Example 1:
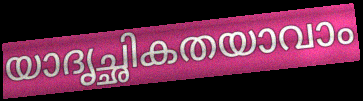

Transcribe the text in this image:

യാദൃച്ഛികതയാവാം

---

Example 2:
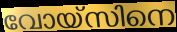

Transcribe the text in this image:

വോയ്സിനെ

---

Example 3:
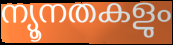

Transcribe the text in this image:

ന്യൂനതകളും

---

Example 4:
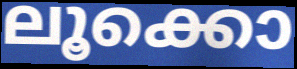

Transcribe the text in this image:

ലൂക്കൊ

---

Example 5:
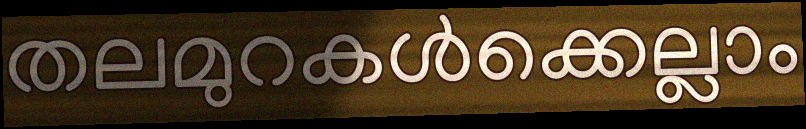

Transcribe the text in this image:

തലമുറകൾക്കെല്ലാം